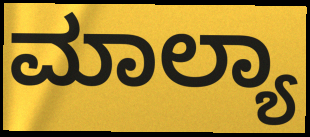
ಮಾಲ್ಯಾ